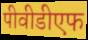
पीवीडीएफ